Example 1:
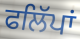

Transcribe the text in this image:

ਫਲਿੱਪਾਂ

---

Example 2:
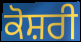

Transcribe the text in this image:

ਕੋਸ਼ਰੀ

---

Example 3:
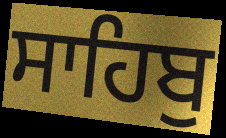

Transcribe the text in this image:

ਸਾਹਿਬੁ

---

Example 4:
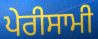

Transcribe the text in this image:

ਪੇਰੀਸਾਮੀ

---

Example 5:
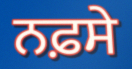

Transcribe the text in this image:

ਨਫ਼ਸੇ